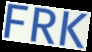
FRK